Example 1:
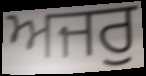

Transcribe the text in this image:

ਅਜਰੁ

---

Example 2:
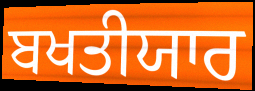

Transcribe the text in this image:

ਬਖਤੀਯਾਰ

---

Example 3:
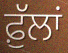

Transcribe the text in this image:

ਫ਼ੁੱਲਾਂ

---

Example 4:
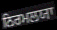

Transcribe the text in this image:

ਨਿਰਮਲਯਾ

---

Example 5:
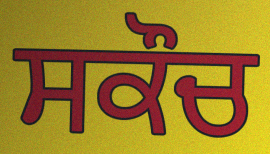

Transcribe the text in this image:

ਸਕੌਚ